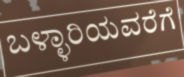
ಬಳ್ಳಾರಿಯವರೆಗೆ